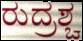
ರುದ್ರಶ್ಚ